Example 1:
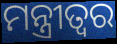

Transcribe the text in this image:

ମନ୍ତ୍ରୀତ୍ୱର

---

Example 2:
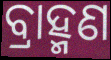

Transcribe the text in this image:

ବ୍ରାହ୍ମଣ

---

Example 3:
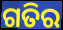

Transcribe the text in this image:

ଗତିର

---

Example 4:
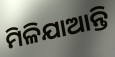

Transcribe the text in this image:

ମିଳିଯାଆନ୍ତି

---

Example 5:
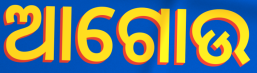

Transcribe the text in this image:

ଆଗୋଉ